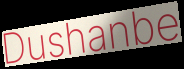
Dushanbe